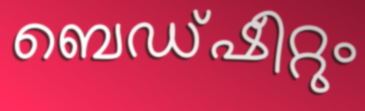
ബെഡ്ഷീറ്റും